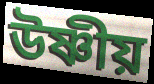
উষ্ণীয়